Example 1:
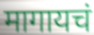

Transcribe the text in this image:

मागायचं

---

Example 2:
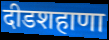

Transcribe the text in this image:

दीडशहाणा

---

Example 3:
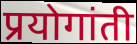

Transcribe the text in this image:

प्रयोगांती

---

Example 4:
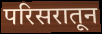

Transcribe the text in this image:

परिसरातून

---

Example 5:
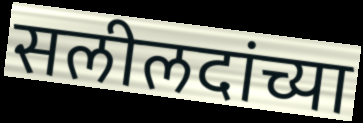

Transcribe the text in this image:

सलीलदांच्या